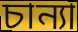
চান্যা